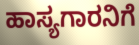
ಹಾಸ್ಯಗಾರನಿಗೆ